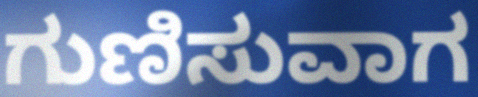
ಗುಣಿಸುವಾಗ